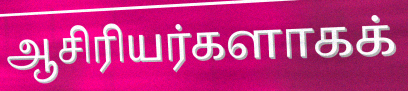
ஆசிரியர்களாகக்